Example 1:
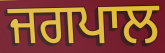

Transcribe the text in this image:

ਜਗਪਾਲ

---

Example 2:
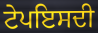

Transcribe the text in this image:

ਟੇਪਇਸਦੀ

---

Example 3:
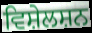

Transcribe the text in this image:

ਵਿਸ਼ੇਲਸ਼ਨ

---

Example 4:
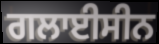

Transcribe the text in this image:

ਗਲਾਈਸੀਨ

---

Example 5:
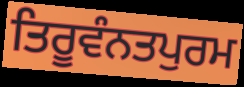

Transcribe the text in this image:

ਤਿਰੂਵੰਨਤਪੁਰਮ